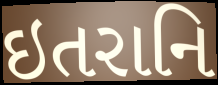
ઇતરાનિ